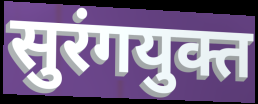
सुरंगयुक्त